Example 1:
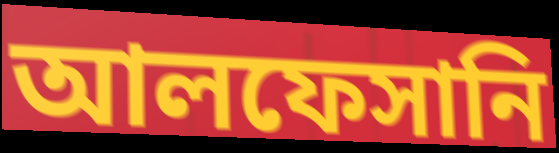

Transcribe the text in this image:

আলফেসানি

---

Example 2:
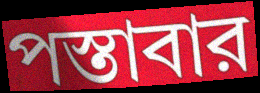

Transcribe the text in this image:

পস্তাবার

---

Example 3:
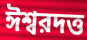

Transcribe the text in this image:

ঈশ্বরদত্ত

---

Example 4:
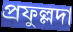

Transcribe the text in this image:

প্রফুল্লদা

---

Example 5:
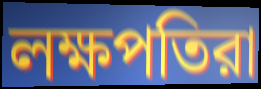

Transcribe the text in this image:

লক্ষপতিরা